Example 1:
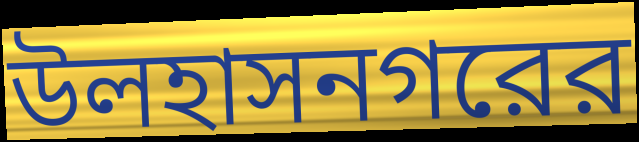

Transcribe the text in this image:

উলহাসনগরের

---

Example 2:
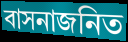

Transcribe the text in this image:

বাসনাজনিত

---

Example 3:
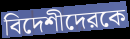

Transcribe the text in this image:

বিদেশীদেরকে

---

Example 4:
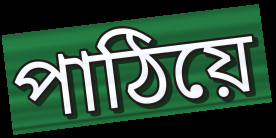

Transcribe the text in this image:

পাঠিয়ে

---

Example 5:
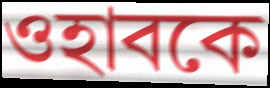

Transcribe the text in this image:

ওহাবকে